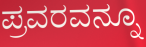
ಪ್ರವರವನ್ನೂ